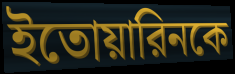
ইতোয়ারিনকে